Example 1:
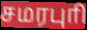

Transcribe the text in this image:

சமரபுரி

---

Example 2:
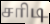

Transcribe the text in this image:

சரிடி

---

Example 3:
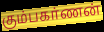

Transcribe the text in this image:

கும்பகர்ணன்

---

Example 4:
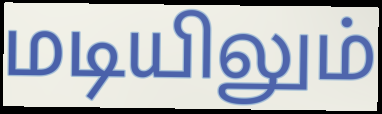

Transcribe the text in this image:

மடியிலும்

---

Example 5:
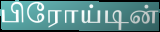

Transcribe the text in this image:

பிரோய்டின்